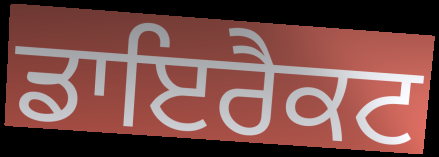
ਡਾਇਰੈਕਟ